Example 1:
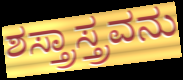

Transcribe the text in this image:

ಶಸ್ತ್ರಾಸ್ತ್ರವನು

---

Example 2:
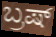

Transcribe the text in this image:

ಬ್ರಷ್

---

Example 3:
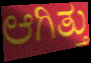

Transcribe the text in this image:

ಆಗಿತ್ತು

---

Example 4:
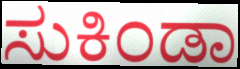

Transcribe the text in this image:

ಸುಕಿಂಡಾ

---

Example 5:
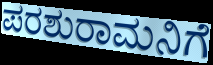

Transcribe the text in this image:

ಪರಶುರಾಮನಿಗೆ